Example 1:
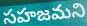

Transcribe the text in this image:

సహజమని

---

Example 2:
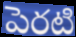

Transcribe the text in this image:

పెరటి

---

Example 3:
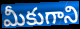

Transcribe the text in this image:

మీకుగాని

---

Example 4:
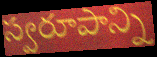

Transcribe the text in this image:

స్వరూపాన్ని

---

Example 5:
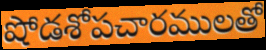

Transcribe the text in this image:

షోడశోపచారములతో